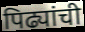
पिढ्यांची